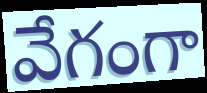
వేగంగా